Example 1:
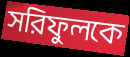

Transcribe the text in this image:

সরিফুলকে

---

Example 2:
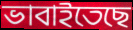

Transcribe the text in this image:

ভাবাইতেছে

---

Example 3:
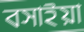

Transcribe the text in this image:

বসাইয়া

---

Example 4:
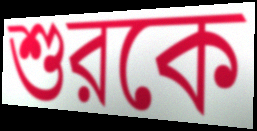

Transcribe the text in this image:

শুরকে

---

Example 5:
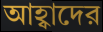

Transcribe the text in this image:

আহ্বাদের